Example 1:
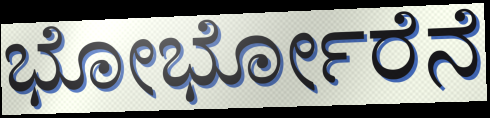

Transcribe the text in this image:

ಭೋರ್ಭೋರೆನೆ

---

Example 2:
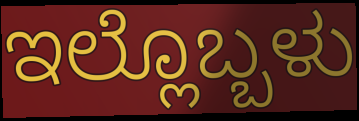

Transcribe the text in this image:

ಇಲ್ಲೊಬ್ಬಳು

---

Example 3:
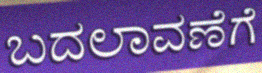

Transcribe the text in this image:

ಬದಲಾವಣೆಗೆ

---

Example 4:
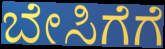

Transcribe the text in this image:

ಬೇಸಿಗೆಗೆ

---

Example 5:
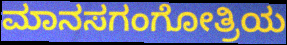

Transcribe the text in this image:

ಮಾನಸಗಂಗೋತ್ರಿಯ